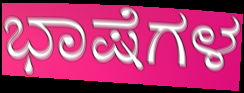
ಭಾಷೆಗಳ